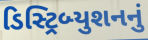
ડિસ્ટ્રિબ્યુશનનું